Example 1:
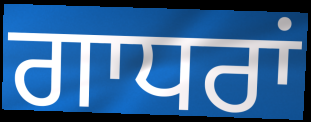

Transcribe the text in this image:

ਗਾਧਰਾਂ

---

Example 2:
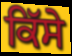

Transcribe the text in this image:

ਕਿੱਸੇ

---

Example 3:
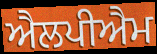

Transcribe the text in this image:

ਐਲਪੀਐਮ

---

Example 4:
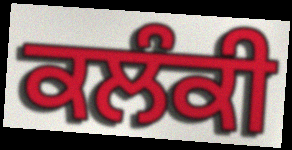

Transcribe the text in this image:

ਕਲੰਕੀ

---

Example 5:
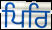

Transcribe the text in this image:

ਪਿਰਿ